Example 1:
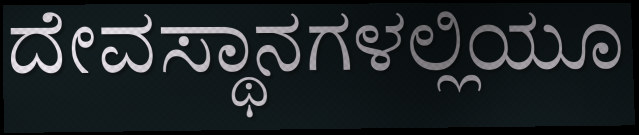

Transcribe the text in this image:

ದೇವಸ್ಥಾನಗಳಲ್ಲಿಯೂ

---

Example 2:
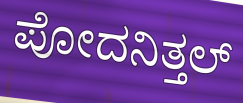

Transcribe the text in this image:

ಪೋದನಿತ್ತಲ್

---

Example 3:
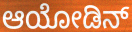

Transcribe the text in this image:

ಆಯೋಡಿನ್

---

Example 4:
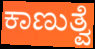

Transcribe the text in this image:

ಕಾಣುತ್ವೆ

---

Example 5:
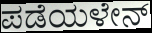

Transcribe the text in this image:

ಪಡೆಯಳೇನ್